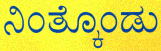
ನಿಂತ್ಕೊಂಡು